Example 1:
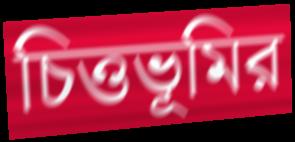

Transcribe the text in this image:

চিত্তভূমির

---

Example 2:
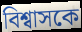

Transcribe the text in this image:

বিশ্বাসকে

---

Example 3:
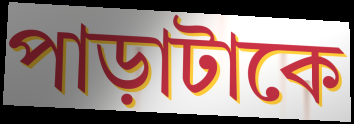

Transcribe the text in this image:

পাড়াটাকে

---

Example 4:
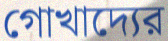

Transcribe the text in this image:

গোখাদ্যের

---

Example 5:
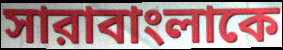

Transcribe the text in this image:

সারাবাংলাকে